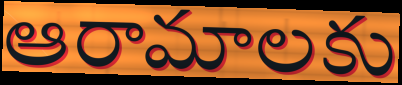
ఆరామాలకు